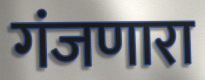
गंजणारा